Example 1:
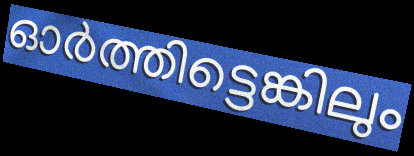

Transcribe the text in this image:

ഓർത്തിട്ടെങ്കിലും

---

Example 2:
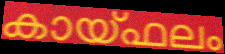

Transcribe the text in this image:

കായ്ഫലം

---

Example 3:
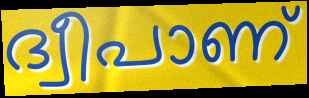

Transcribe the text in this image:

ദ്വീപാണ്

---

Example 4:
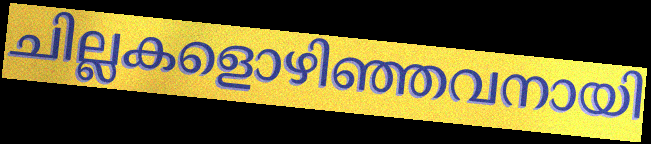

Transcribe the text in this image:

ചില്ലകളൊഴിഞ്ഞവനായി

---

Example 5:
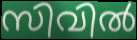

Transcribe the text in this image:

സിവിൽ